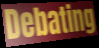
Debating